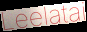
Leelatai